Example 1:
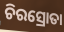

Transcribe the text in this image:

ଚିରସ୍ରୋତା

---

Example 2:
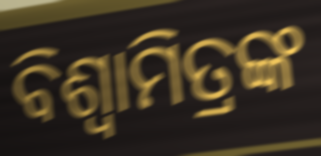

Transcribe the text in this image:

ବିଶ୍ଵାମିତ୍ରଙ୍କ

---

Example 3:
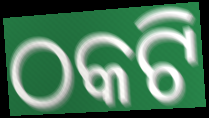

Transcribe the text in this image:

ଠକଟି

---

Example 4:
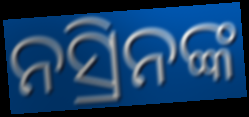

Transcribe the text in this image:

ନସ୍ରିନଙ୍କ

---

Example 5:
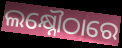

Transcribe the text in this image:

ଲକ୍ଷ୍ନୌଠାରେ